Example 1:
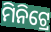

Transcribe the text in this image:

ମିନିଟ୍ରେ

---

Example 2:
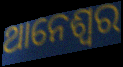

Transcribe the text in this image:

ଥାନେଶ୍ୱର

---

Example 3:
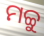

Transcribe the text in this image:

ମଚ୍ଚୁ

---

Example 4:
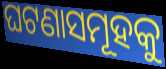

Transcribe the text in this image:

ଘଟଣାସମୂହକୁ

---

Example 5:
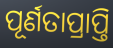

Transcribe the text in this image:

ପୂର୍ଣତାପ୍ରାପ୍ତି